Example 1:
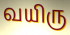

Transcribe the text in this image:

வயிரு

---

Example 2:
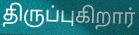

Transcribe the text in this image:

திருப்புகிறார்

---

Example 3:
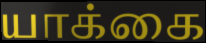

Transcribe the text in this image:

யாக்கை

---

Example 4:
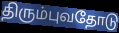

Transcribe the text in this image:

திரும்புவதோடு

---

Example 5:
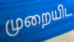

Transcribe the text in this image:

முறையிட